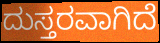
ದುಸ್ತರವಾಗಿದೆ